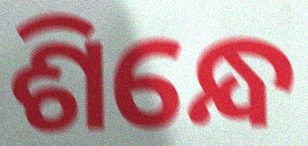
ଶିନ୍ଧେ